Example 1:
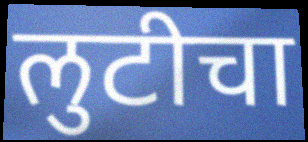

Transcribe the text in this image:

लुटीचा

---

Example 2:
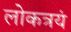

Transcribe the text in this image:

लोकत्रयं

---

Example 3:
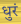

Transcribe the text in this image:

धुरं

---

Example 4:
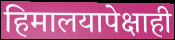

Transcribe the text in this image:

हिमालयापेक्षाही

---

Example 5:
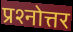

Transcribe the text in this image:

प्रश्नोत्तर